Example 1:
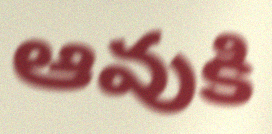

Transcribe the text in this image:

ఆవుకి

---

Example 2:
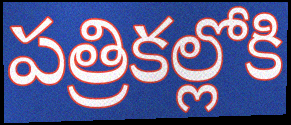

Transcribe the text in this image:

పత్రికల్లోకి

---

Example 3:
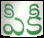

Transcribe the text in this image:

పీకీ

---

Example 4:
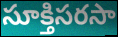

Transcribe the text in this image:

సూక్తిసరసా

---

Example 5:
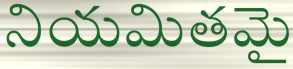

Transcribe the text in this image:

నియమితమై